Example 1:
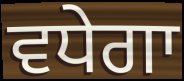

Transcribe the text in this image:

ਵਧੇਗਾ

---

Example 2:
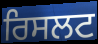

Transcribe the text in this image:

ਰਿਸਲਟ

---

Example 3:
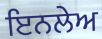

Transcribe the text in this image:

ਇਨਲੇਅ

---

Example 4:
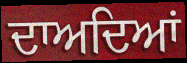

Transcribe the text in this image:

ਦਾਅਦਿਆਂ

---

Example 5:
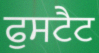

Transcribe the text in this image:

ਫੁਸਟੈਟ